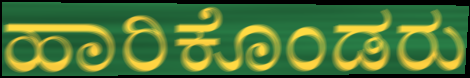
ಹಾರಿಕೊಂಡರು